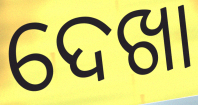
ଦେଖା